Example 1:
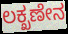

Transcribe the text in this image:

ಲಕ್ಖಣೇನ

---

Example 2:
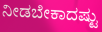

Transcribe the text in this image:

ನೀಡಬೇಕಾದಷ್ಟು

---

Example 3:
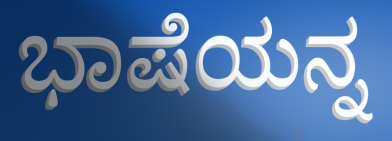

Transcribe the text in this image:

ಭಾಷೆಯನ್ನ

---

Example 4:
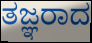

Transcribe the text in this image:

ತಜ್ಞರಾದ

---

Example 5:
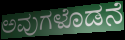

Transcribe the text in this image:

ಅವುಗಳೊಡನೆ